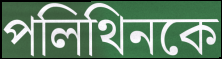
পলিথিনকে